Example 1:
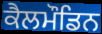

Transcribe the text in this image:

ਕੈਲਮੌਡਿਨ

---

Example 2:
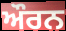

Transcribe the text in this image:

ਔਰਨ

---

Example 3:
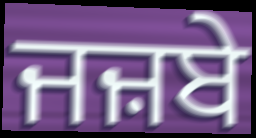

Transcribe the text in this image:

ਜਜ਼ਬੇ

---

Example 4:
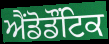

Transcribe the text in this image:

ਐਂਡੋਡੌਂਟਿਕ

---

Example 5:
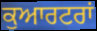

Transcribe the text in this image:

ਕੁਆਰਟਰਾਂ